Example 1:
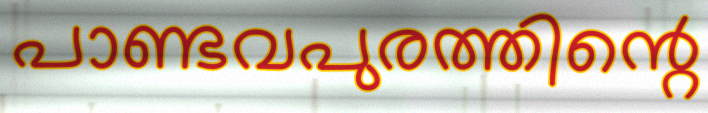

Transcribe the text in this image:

പാണ്ടവപുരത്തിന്റെ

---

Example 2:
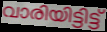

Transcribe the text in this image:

വാരിയിട്ടിട്ട്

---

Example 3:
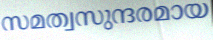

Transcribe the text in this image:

സമത്വസുന്ദരമായ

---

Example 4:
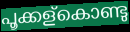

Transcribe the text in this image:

പൂക്കള്കൊണ്ടു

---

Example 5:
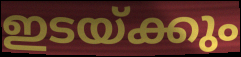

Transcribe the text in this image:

ഇടയ്ക്കും